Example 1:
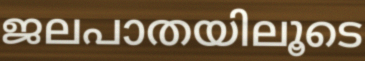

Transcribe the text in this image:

ജലപാതയിലൂടെ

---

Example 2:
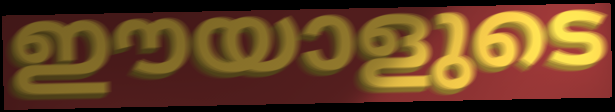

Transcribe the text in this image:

ഈയാളുടെ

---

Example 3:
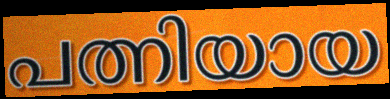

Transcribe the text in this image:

പത്നിയായ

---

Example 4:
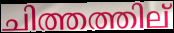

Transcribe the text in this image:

ചിത്തത്തില്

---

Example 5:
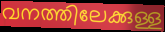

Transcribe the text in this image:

വനത്തിലേക്കുള്ള